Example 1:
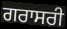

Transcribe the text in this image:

ਗਰਾਸਰੀ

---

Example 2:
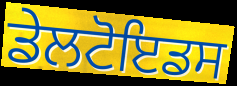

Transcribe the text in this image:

ਡੇਲਟੋਇਡਸ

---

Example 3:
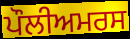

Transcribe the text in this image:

ਪੌਲੀਅਮਰਸ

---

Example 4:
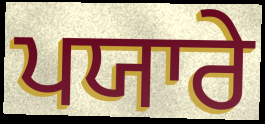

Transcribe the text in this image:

ਪਯਾਰੇ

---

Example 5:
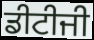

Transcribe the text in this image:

ਡੀਟੀਜੀ